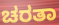
ಚರತಾ